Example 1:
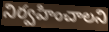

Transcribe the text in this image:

నిర్వహించాలని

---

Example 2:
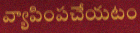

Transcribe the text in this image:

వ్యాపింపచేయటం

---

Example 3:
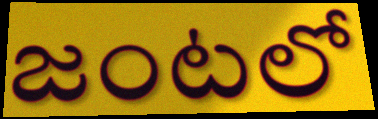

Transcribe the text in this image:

జంటలో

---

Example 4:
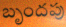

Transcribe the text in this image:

బృందపు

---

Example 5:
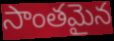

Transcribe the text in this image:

సాంతమైన